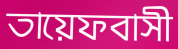
তায়েফবাসী